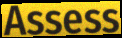
Assess